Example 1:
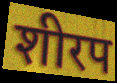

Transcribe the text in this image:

शीरप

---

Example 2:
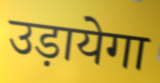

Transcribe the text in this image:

उड़ायेगा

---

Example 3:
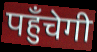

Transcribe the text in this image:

पहुँचेगी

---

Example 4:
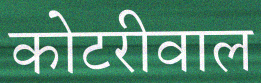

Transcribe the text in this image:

कोटरीवाल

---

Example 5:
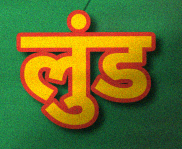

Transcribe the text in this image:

लुंड